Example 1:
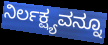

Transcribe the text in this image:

ನಿರ್ಲಕ್ಷ್ಯವನ್ನೂ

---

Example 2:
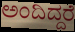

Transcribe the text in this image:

ಅಂದಿದ್ದರೆ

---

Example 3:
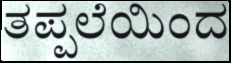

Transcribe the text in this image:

ತಪ್ಪಲೆಯಿಂದ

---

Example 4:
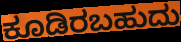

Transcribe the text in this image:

ಕೂಡಿರಬಹುದು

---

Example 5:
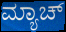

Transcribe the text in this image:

ಮ್ಯಾಚ್